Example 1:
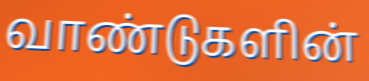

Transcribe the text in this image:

வாண்டுகளின்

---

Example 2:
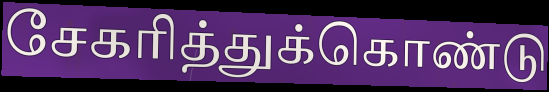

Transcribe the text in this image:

சேகரித்துக்கொண்டு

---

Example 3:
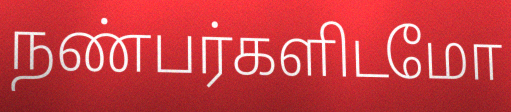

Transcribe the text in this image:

நண்பர்களிடமோ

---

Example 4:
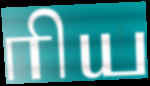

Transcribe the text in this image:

ரிய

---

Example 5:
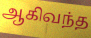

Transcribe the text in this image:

ஆகிவந்த